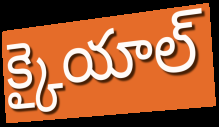
క్కైయాల్